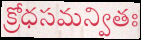
క్రోధసమన్వితః